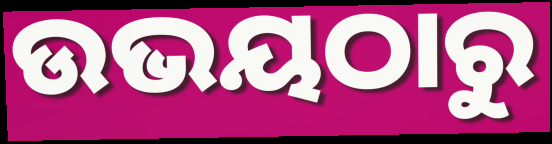
ଉଭୟଠାରୁ